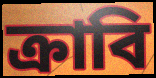
ক্রাবি